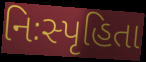
નિઃસ્પૃહિતા